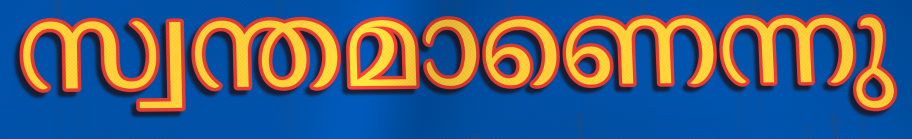
സ്വന്തമാണെന്നു